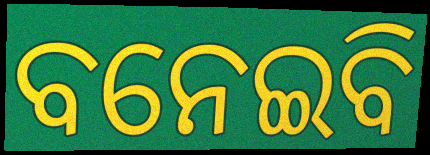
ବନେଇବି